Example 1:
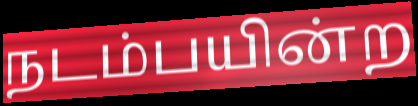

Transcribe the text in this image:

நடம்பயின்ற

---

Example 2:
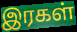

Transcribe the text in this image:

இரகள்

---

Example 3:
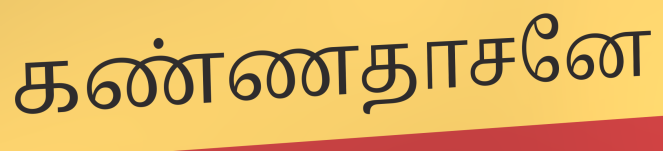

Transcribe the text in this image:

கண்ணதாசனே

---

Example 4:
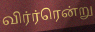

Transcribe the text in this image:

விர்ர்ரென்று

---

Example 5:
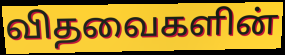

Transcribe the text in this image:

விதவைகளின்